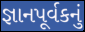
જ્ઞાનપૂર્વકનું